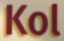
Kol